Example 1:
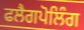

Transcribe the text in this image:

ਫਲੈਗਪੋਲਿੰਗ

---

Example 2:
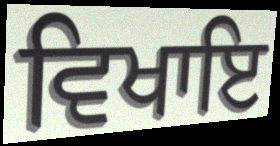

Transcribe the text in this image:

ਵਿਖਾਇ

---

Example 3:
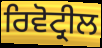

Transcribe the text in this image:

ਰਿਵੋਟ੍ਰੀਲ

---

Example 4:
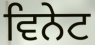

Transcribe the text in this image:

ਵਿਨੇਟ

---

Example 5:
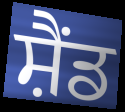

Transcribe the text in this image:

ਸ਼ੈਂਡ